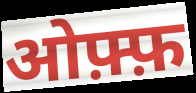
ओफ़्फ़